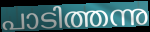
പാടിത്തന്നു